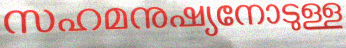
സഹമനുഷ്യനോടുള്ള